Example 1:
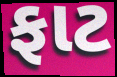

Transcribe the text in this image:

ફાટ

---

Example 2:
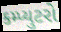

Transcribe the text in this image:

કમ્પ્યુટરો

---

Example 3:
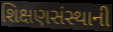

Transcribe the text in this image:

શિક્ષણસંસ્થાની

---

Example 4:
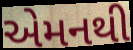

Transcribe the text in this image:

એમનથી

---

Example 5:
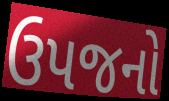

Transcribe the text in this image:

ઉપજનો